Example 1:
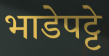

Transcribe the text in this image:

भाडेपट्टे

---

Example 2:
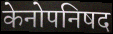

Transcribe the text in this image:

केनोपनिषद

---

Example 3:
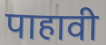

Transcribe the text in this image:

पाहावी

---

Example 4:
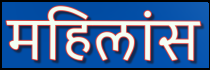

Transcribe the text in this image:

महिलांस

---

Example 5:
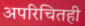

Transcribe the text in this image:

अपरिचितही